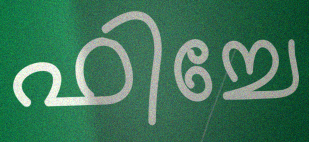
ഫിച്ചേ